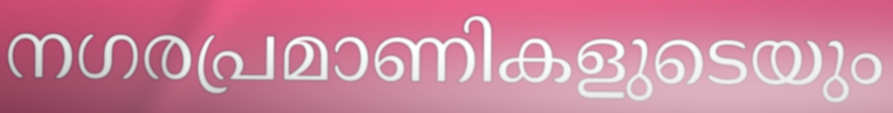
നഗരപ്രമാണികളുടെയും